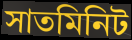
সাতমিনিট